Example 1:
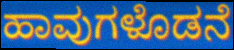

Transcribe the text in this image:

ಹಾವುಗಳೊಡನೆ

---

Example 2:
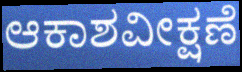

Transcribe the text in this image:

ಆಕಾಶವೀಕ್ಷಣೆ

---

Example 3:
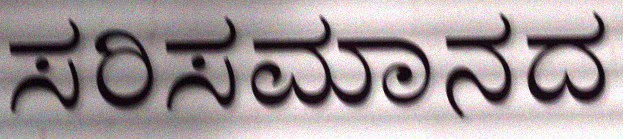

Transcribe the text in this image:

ಸರಿಸಮಾನದ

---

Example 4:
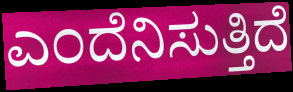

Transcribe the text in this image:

ಎಂದೆನಿಸುತ್ತಿದೆ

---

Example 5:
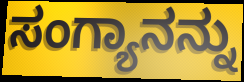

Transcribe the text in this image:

ಸಂಗ್ಯಾನನ್ನು